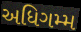
અધિગમ્મ